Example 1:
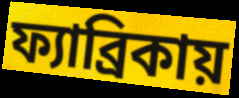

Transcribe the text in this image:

ফ্যাব্রিকায়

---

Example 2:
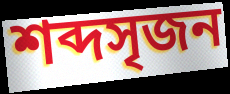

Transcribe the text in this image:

শব্দসৃজন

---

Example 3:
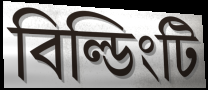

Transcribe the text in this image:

বিল্ডিংটি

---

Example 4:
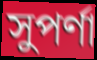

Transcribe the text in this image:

সুপর্ণা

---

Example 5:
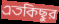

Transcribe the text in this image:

এতকিছুর